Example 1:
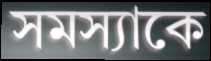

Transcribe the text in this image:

সমস্যাকে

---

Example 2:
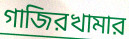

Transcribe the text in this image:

গাজিরখামার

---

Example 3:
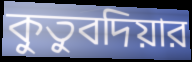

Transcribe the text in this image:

কুতুবদিয়ার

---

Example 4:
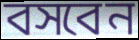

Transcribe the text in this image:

বসবেন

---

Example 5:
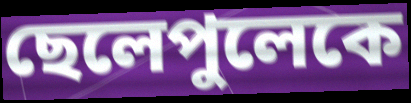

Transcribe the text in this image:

ছেলেপুলেকে